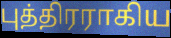
புத்திரராகிய